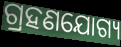
ଗ୍ରହଣଯୋଗ୍ୟ